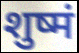
शुष्मं